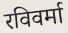
रविवर्मा